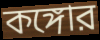
কঙ্গোর